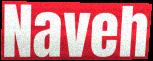
Naveh